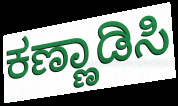
ಕಣ್ಣಾಡಿಸಿ